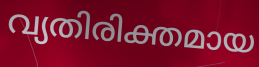
വ്യതിരിക്തമായ